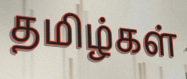
தமிழ்கள்